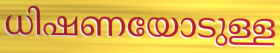
ധിഷണയോടുള്ള